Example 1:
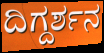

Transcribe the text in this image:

ದಿಗ್ದರ್ಶನ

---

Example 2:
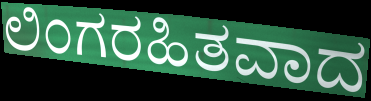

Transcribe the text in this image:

ಲಿಂಗರಹಿತವಾದ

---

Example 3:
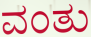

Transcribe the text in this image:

ವಂತು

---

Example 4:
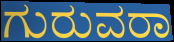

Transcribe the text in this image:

ಗುರುವರಾ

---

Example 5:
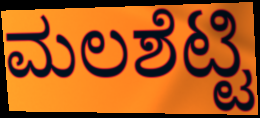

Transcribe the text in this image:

ಮಲಶೆಟ್ಟಿ